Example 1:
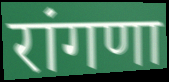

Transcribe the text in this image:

रांगणा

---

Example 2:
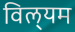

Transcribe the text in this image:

विल्यम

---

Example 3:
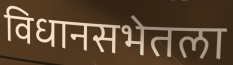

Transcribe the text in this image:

विधानसभेतला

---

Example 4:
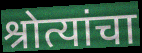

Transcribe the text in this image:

श्रोत्यांचा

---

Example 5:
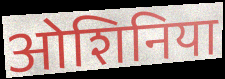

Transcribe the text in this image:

ओशिनिया